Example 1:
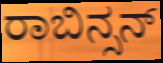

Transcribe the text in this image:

ರಾಬಿನ್ಸನ್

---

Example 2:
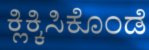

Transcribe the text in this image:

ಕ್ಲಿಕ್ಕಿಸಿಕೊಂಡೆ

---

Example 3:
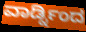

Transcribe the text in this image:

ವಾರ್ಡ್ನಿಂದ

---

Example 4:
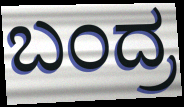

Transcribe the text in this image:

ಬಂದ್ರ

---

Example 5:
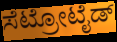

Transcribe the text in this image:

ಸೆಟ್ರೋಟೈಡ್